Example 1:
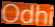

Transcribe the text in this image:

Odhi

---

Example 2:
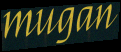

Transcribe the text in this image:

mugan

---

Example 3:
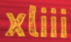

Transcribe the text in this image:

xliii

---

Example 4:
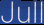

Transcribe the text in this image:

Jull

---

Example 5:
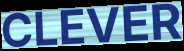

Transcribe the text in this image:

CLEVER